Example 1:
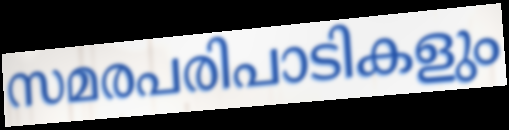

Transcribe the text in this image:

സമരപരിപാടികളും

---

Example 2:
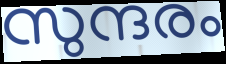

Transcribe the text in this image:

സുന്ദരം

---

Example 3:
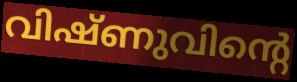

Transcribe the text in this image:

വിഷ്ണുവിന്റെ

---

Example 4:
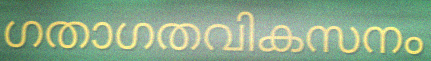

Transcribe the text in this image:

ഗതാഗതവികസനം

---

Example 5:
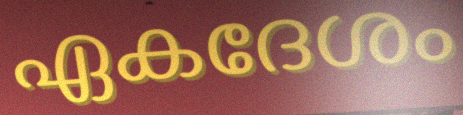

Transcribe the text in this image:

ഏകദേശം